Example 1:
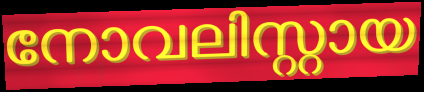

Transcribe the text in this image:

നോവലിസ്റ്റായ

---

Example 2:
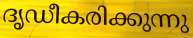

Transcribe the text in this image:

ദൃഡീകരിക്കുന്നു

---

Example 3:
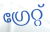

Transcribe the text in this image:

ഗ്രേറ്റ്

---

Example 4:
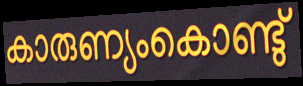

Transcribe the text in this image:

കാരുണ്യംകൊണ്ടു്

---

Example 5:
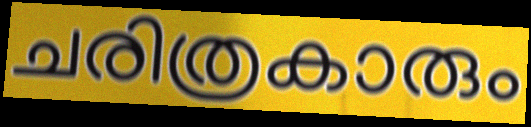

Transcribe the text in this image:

ചരിത്രകാരും